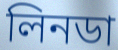
লিনডা